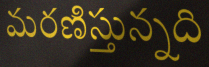
మరణిస్తున్నది